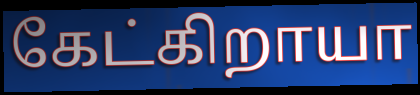
கேட்கிறாயா